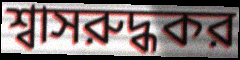
শ্বাসরুদ্ধকর